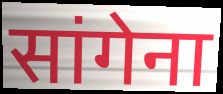
सांगेना